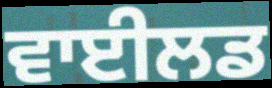
ਵਾਈਲਡ